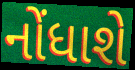
નોંધાશે